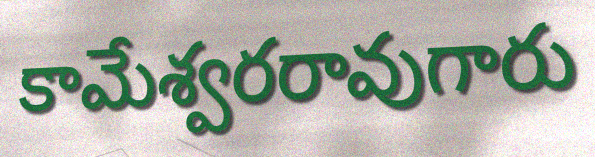
కామేశ్వరరావుగారు